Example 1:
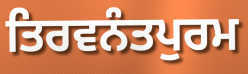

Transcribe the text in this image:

ਤਿਰਵਨੰਤਪੁਰਮ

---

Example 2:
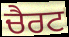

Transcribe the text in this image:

ਚੈਰਟ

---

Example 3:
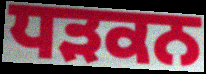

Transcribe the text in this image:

ਧੜਕਨ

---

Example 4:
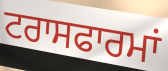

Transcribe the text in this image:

ਟਰਾਸਫਾਰਮਾਂ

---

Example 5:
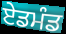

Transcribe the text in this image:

ਏਡਮੰਡ